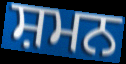
ਸ਼ਮਨ